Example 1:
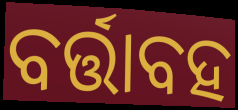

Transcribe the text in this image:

ବର୍ତ୍ତାବହ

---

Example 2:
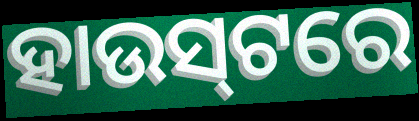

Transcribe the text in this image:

ହାଉସ୍‌ଟରେ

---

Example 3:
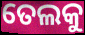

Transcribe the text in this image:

ତେଲକୁ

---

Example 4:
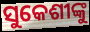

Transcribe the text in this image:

ସୁକେଶୀଙ୍କୁ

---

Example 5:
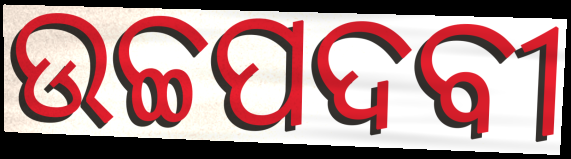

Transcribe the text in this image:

ଉଚ୍ଚପଦବୀ